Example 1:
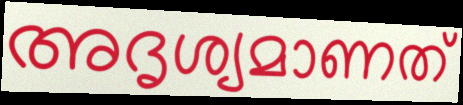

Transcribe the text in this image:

അദൃശ്യമാണത്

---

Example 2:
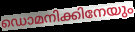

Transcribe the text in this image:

ഡൊമനിക്കിനേയും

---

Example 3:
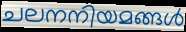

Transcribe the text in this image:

ചലനനിയമങ്ങൾ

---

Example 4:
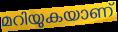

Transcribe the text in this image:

മറിയുകയാണ്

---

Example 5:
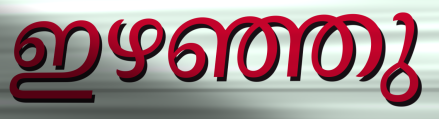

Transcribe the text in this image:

ഇഴഞ്ഞു